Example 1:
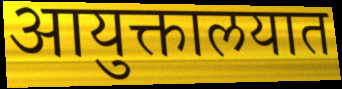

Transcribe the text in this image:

आयुक्तालयात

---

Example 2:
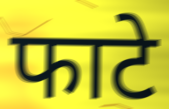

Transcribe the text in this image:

फाटे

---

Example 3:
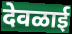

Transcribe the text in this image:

देवळाई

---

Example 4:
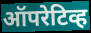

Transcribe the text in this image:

ऑपरेटिव्ह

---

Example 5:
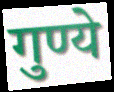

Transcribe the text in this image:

गुण्ये